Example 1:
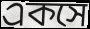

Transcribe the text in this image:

একসে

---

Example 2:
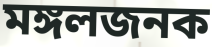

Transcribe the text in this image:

মঙ্গলজনক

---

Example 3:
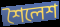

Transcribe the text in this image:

শৈলেশ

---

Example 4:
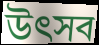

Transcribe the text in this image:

উত্‍সব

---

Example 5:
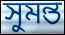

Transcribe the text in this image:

সুমন্ত